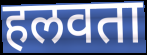
हलवता